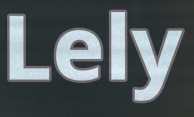
Lely